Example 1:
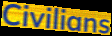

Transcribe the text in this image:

Civilians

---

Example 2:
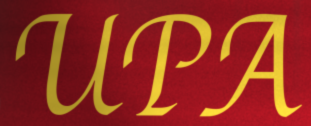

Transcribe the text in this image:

UPA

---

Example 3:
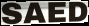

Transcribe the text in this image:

SAED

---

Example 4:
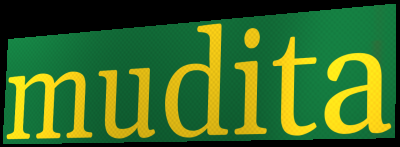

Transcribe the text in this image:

mudita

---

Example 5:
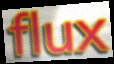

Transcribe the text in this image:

flux